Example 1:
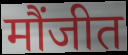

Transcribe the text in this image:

मौंजीत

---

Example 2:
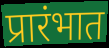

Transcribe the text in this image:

प्रारंभात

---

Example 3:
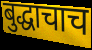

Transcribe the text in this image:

बुद्धाचाच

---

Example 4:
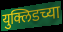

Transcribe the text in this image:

युक्लिडच्या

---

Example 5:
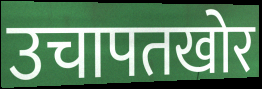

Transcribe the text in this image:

उचापतखोर